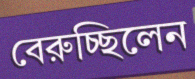
বেরুচ্ছিলেন